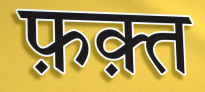
फ़क़्त